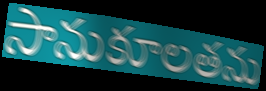
సానుకూలతను